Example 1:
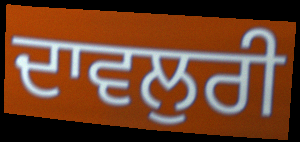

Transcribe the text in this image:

ਦਾਵਲੁਰੀ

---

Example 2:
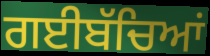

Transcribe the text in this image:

ਗਈਬੱਚਿਆਂ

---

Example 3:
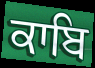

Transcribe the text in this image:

ਕਾਬਿ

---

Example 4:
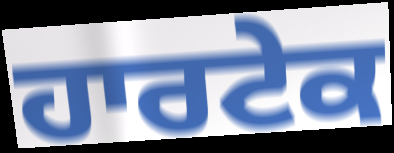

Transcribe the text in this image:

ਹਾਰਟੇਕ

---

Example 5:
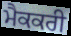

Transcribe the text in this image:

ਮੈਕਕਰੀ